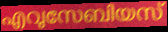
എവുസേബിയസ്